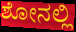
ಶೋನಲ್ಲಿ